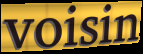
voisin